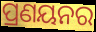
ପ୍ରଣୟନର